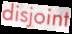
disjoint